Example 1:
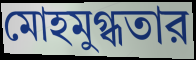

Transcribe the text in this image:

মোহমুগ্ধতার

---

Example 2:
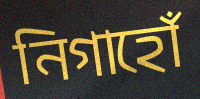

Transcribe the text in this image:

নিগাহোঁ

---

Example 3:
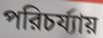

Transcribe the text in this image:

পরিচর্য্যায়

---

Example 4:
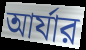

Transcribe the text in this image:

আর্যার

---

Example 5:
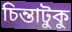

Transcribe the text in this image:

চিন্তাটুকু